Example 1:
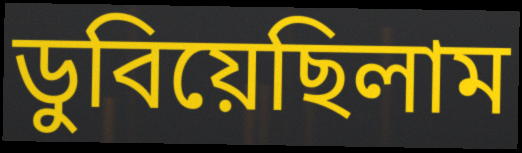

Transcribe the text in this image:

ডুবিয়েছিলাম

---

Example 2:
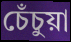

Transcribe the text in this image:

চেঁচুয়া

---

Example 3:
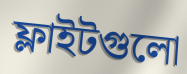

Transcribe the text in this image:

ফ্লাইটগুলো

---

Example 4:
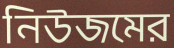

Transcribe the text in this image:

নিউজমের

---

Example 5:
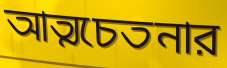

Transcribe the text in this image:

আত্মচেতনার